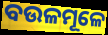
ବଉଳମୂଳେ